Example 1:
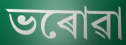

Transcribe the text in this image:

ভৰোৱা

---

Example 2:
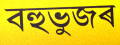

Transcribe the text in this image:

বহুভুজৰ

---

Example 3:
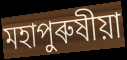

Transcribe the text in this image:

মহাপুৰুষীয়া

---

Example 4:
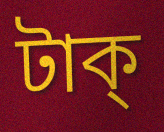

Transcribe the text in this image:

টাক্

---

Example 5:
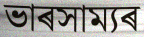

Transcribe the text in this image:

ভাৰসাম্যৰ